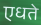
एधते